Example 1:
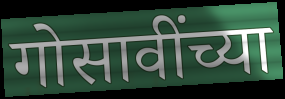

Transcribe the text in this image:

गोसावींच्या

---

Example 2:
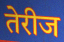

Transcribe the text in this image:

तेरीज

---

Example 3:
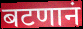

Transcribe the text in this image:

बटणानं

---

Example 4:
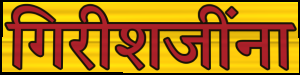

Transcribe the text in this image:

गिरीशजींना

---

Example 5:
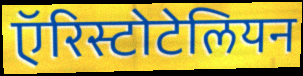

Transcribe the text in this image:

ऍरिस्टोटेलियन